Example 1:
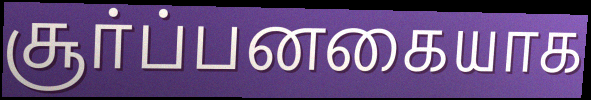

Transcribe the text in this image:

சூர்ப்பனகையாக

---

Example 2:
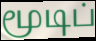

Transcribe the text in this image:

மூடிப்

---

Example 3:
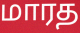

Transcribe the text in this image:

மாரத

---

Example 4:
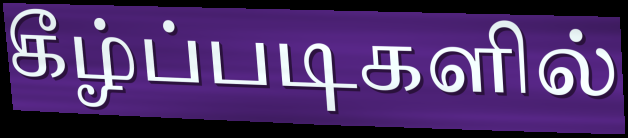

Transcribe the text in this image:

கீழ்ப்படிகளில்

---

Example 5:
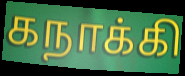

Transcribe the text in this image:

கநாக்கி